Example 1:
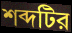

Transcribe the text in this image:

শব্দটির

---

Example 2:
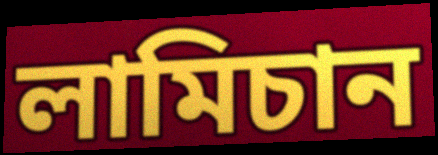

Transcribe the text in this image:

লামিচান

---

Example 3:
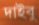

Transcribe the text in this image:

দাইবু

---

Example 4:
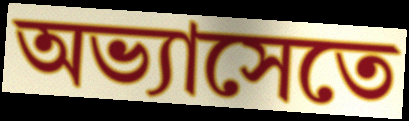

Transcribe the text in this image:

অভ্যাসেতে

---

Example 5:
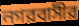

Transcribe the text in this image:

নগরবাসীর